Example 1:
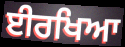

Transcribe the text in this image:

ਈਰਖਿਆ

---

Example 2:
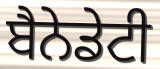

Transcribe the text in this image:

ਬੈਨੇਡੇਟੀ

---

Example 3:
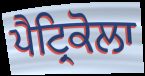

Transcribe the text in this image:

ਪੈਟ੍ਰਿਕੋਲਾ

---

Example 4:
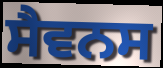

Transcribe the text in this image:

ਸੈਵਨਸ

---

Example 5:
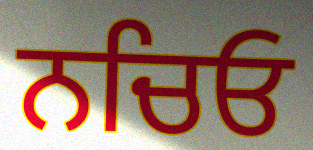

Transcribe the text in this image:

ਨਚਿਓ